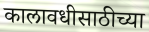
कालावधीसाठीच्या